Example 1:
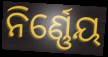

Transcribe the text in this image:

ନିର୍ଣ୍ଣେୟ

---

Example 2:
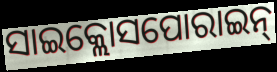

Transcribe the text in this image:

ସାଇକ୍ଲୋସପୋରାଇନ୍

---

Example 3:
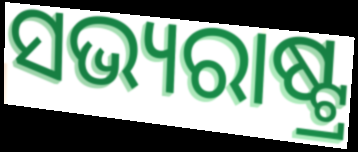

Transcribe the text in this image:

ସଭ୍ୟରାଷ୍ଟ୍ର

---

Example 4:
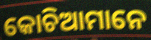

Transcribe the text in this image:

କୋଚିଆମାନେ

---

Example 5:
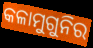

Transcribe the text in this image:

କଳାମୁଗୁନିର